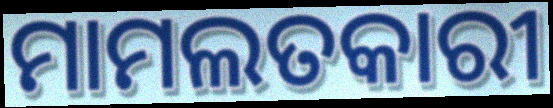
ମାମଲତକାରୀ